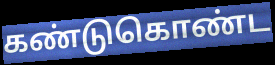
கண்டுகொண்ட